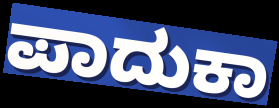
ಪಾದುಕಾ